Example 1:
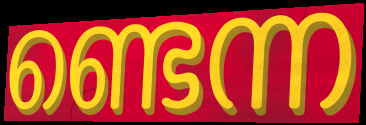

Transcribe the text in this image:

ണ്ടെന്ന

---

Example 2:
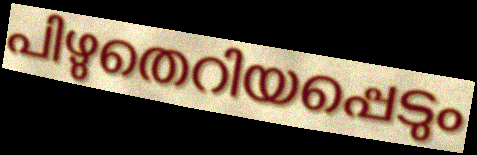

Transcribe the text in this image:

പിഴുതെറിയപ്പെടും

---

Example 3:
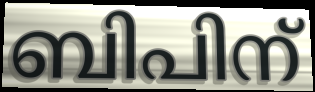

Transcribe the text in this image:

ബിപിന്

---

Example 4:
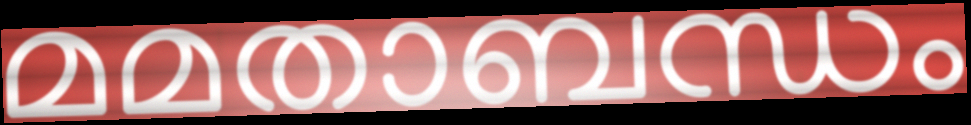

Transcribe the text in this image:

മമതാബന്ധം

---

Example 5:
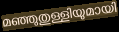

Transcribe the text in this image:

മഞ്ഞുതുള്ളിയുമായി